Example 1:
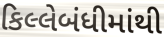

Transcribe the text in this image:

કિલ્લેબંધીમાંથી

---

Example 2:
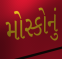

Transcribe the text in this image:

મોસ્કોનું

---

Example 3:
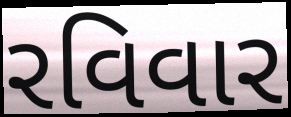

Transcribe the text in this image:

રવિવાર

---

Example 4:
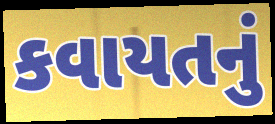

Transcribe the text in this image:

કવાયતનું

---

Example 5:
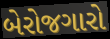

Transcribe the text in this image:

બેરોજગારો